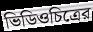
ভিডিওচিত্রের